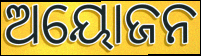
ଅୟୋଜନ